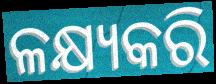
ଳକ୍ଷ୍ୟକରି